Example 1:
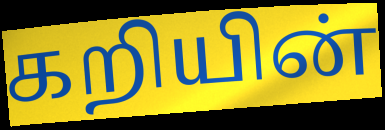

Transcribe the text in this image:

கறியின்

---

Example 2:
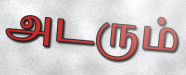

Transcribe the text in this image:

அடரும்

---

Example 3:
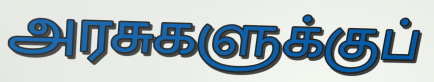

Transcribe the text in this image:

அரசுகளுக்குப்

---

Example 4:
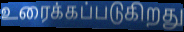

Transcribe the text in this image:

உரைக்கப்படுகிறது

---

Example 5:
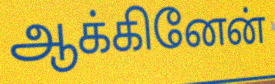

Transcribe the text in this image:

ஆக்கினேன்